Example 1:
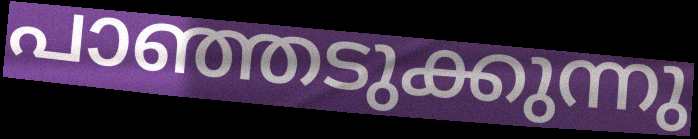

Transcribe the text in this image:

പാഞ്ഞടുക്കുന്നു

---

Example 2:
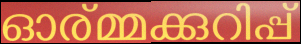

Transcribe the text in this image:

ഓര്മ്മക്കുറിപ്പ്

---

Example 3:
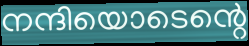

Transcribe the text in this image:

നന്ദിയൊടെന്റെ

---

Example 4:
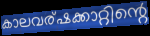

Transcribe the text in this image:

കാലവര്ഷക്കാറ്റിന്റെ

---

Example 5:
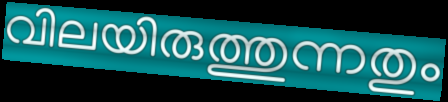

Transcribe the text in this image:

വിലയിരുത്തുന്നതും